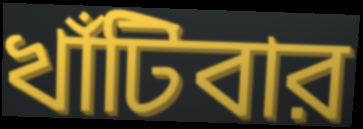
খাঁটিবার